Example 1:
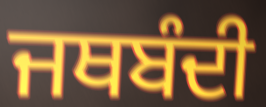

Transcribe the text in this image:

ਜਥਬੰਦੀ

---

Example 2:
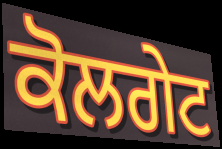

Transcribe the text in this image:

ਕੋਲਗੇਟ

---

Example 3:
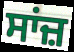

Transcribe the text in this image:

ਸਾਂਜ਼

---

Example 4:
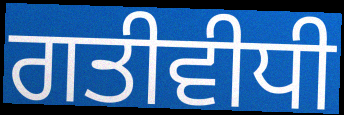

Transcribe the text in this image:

ਗਤੀਵੀਧੀ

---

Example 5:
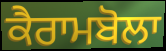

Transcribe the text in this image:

ਕੈਰਾਮਬੋਲਾ